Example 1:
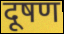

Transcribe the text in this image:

दूषण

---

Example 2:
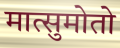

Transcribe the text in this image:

मात्सुमोतो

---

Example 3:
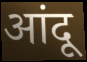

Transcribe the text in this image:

आंदू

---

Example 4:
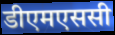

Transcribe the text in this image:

डीएमएससी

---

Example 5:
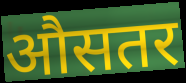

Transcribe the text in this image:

औसतर